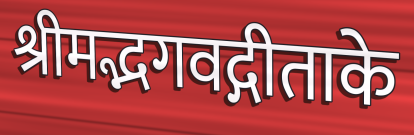
श्रीमद्भगवद्गीताके